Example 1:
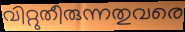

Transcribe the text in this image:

വിറ്റുതീരുന്നതുവരെ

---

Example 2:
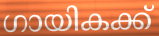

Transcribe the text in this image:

ഗായികക്ക്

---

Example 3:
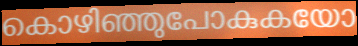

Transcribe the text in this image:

കൊഴിഞ്ഞുപോകുകയോ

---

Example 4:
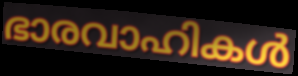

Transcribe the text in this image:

ഭാരവാഹികൾ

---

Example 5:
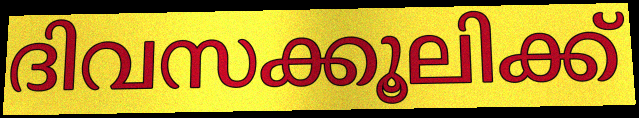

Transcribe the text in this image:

ദിവസക്കൂലിക്ക്